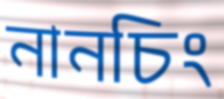
নানচিং